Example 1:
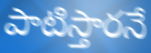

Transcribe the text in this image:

పాటిస్తారనే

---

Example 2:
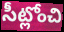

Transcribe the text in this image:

సీట్లోంచి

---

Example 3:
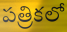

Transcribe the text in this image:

పత్రికలో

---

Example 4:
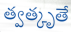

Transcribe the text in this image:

త్వత్కృతే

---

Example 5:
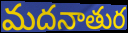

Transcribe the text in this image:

మదనాతుర